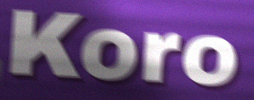
Koro